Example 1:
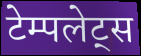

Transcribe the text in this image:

टेम्पलेट्स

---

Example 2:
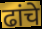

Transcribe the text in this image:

ढांचे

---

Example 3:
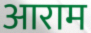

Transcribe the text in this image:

आराम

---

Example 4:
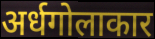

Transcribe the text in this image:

अर्धगोलाकार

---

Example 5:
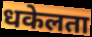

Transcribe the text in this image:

धकेलता